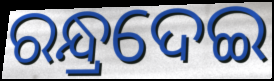
ରନ୍ଧ୍ରଦେଇ